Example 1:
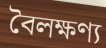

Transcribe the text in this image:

বৈলক্ষণ্য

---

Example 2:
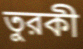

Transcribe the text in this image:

তুরকী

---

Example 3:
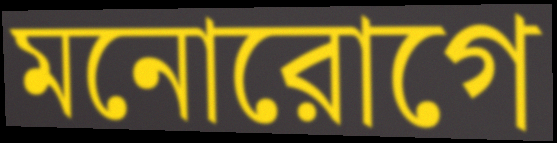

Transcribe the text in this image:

মনোরোগে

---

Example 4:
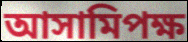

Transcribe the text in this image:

আসামিপক্ষ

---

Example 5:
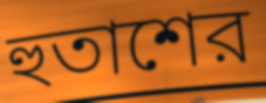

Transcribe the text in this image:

হুতাশের